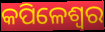
କପିଳେଶ୍ଵର